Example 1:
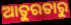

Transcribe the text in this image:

ଆତୁରତାରୁ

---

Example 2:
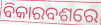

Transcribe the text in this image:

ବିକାରବଶରେ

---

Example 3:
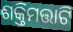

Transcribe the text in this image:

ଶକ୍ତିମତ୍ତାଟି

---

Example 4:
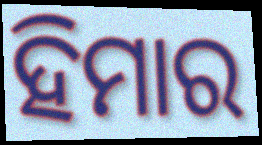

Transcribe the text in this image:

ହିମାର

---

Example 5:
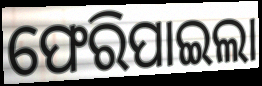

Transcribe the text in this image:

ଫେରିପାଇଲା